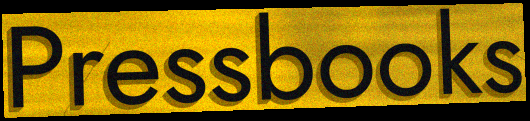
Pressbooks